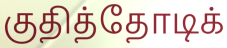
குதித்தோடிக்